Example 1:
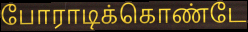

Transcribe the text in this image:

போராடிக்கொண்டே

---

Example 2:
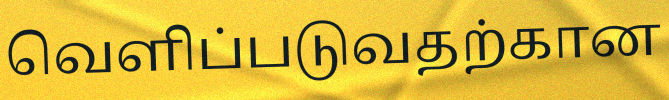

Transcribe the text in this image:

வெளிப்படுவதற்கான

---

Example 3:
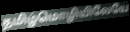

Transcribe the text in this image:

தமிழ்மொழியிலேயே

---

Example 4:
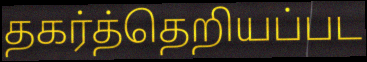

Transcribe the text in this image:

தகர்த்தெறியப்பட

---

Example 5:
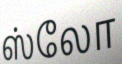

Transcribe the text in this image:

ஸ்லோ